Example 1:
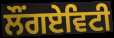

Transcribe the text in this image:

ਲੌਂਗਏਵਿਟੀ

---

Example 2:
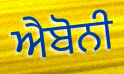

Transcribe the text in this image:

ਐਬੋਨੀ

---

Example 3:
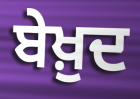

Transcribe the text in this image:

ਬੇਖ਼ੁਦ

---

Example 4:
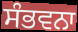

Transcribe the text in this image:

ਸੰਭਵਨਾ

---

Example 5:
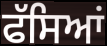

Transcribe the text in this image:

ਫੱਸਿਆਂ